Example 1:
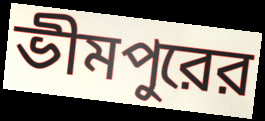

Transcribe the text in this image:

ভীমপুরের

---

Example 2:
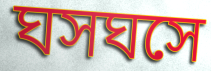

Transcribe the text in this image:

ঘসঘসে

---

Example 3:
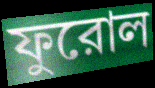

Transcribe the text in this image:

ফুরোল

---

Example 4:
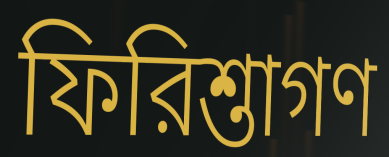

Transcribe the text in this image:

ফিরিশ্তাগণ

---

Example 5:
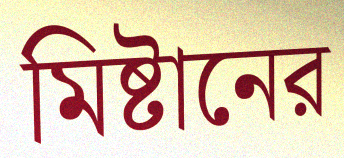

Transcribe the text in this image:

মিষ্টানের